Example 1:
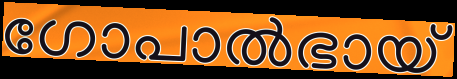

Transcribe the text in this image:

ഗോപാൽഭായ്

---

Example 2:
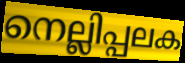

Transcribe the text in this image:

നെല്ലിപ്പലക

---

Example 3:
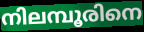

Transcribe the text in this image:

നിലമ്പൂരിനെ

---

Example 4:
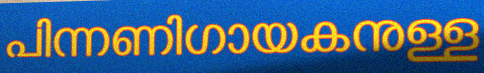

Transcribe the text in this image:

പിന്നണിഗായകനുള്ള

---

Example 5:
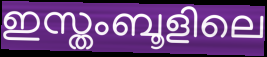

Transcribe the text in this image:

ഇസ്തംബൂളിലെ